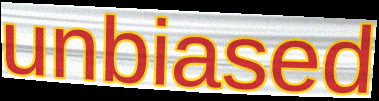
unbiased